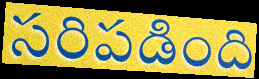
సరిపడింది